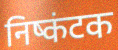
निष्कंटक